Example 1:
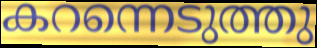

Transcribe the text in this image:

കറന്നെടുത്തു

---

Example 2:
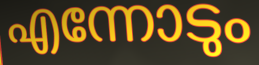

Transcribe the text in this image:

എന്നോടും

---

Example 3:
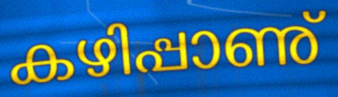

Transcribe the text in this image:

കഴിപ്പാണു്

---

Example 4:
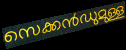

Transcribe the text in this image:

സെക്കൻഡുമുള്ള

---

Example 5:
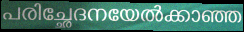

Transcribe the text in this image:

പരിച്ഛേദനയേൽക്കാഞ്ഞ